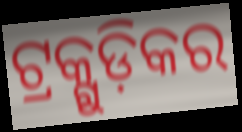
ଟ୍ରକ୍ଗୁଡ଼ିକର